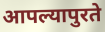
आपल्यापुरते